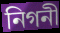
নিগনী